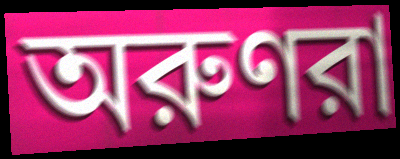
অরুণরা